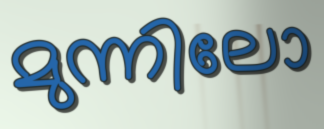
മുന്നിലോ